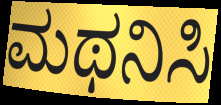
ಮಥನಿಸಿ